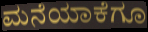
ಮನೆಯಾಕೆಗೂ